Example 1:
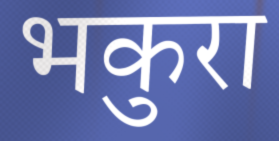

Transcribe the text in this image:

भकुरा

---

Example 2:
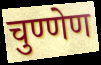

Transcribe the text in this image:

चुण्णेण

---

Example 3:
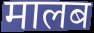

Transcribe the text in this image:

मालब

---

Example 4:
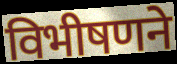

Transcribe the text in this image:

विभीषणने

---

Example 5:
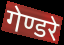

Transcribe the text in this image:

गेण्डरे